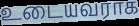
உடையவராக